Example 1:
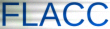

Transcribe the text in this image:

FLACC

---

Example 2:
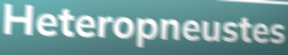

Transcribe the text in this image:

Heteropneustes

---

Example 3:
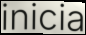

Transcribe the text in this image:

inicia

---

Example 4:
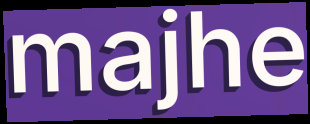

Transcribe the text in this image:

majhe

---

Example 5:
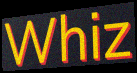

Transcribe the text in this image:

Whiz